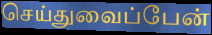
செய்துவைப்பேன்